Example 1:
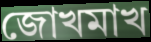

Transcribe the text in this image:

জোখমাখ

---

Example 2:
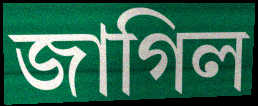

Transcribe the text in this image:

জাগিল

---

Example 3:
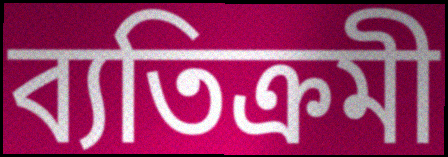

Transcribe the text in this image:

ব্যতিক্ৰমী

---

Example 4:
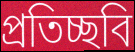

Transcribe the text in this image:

প্ৰতিচ্ছবি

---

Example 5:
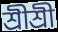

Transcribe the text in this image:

শ্ৰীশ্ৰী